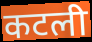
कटली